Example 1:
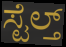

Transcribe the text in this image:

ಸ್ಟೆಲ್ತ್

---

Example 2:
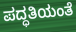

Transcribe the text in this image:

ಪದ್ಧತಿಯಂತೆ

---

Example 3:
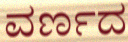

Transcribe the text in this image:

ವರ್ಣದ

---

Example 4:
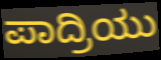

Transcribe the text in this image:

ಪಾದ್ರಿಯು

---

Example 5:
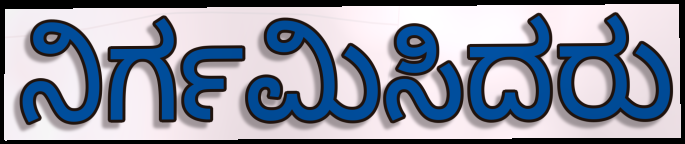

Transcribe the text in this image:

ನಿರ್ಗಮಿಸಿದರು